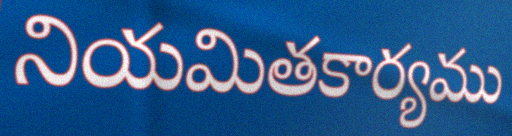
నియమితకార్యము